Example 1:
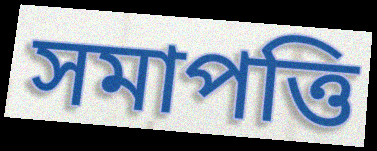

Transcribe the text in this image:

সমাপত্তি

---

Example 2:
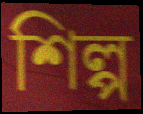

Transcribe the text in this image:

শিল্প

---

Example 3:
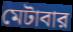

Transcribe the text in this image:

মেটাবার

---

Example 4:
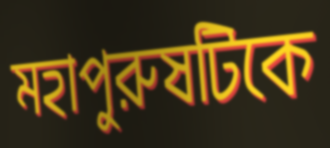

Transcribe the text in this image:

মহাপুরুষটিকে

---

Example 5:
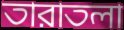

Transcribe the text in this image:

তারাতলা